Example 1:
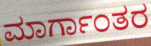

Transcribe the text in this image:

ಮಾರ್ಗಾಂತರ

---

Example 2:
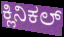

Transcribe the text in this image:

ಕ್ಲಿನಿಕಲ್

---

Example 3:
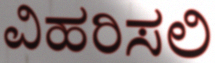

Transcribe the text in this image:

ವಿಹರಿಸಲಿ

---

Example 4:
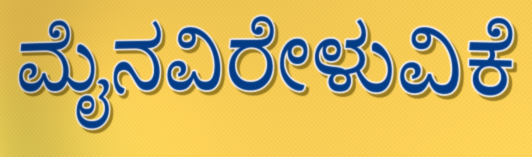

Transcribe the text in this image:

ಮೈನವಿರೇಳುವಿಕೆ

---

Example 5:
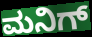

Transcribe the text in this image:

ಮನಿಗ್